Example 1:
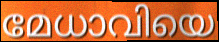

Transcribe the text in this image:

മേധാവിയെ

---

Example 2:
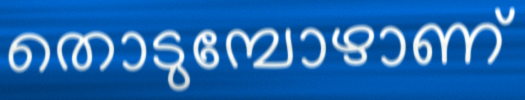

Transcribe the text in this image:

തൊടുമ്പോഴാണ്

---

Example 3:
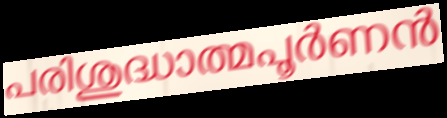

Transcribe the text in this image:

പരിശുദ്ധാത്മപൂർണൻ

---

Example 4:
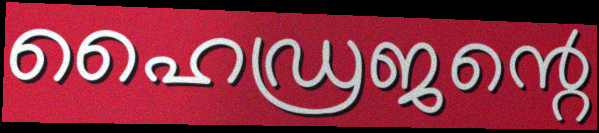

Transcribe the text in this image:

ഹൈഡ്രജന്റെ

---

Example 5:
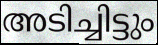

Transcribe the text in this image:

അടിച്ചിട്ടും